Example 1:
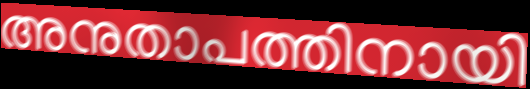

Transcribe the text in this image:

അനുതാപത്തിനായി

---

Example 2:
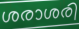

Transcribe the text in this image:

ശരാശരി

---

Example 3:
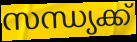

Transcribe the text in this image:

സന്ധ്യക്ക്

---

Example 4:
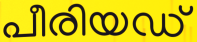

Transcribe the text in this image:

പീരിയഡ്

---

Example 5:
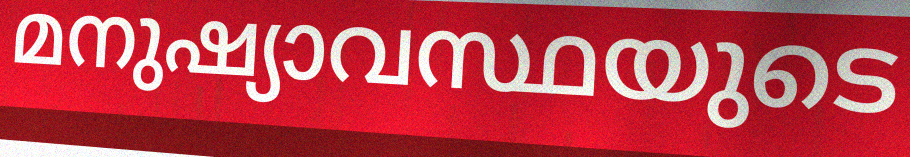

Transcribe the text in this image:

മനുഷ്യാവസ്ഥയുടെ